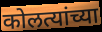
कोलत्यांच्या